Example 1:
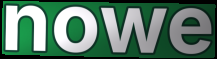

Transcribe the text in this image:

nowe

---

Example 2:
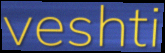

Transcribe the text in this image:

veshti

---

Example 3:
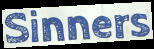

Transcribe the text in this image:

Sinners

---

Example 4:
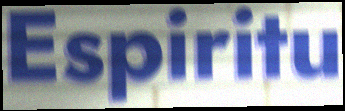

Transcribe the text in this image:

Espiritu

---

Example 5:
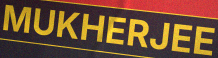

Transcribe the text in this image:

MUKHERJEE